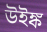
উইঙ্ক